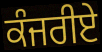
ਕੰਜਰੀਏ